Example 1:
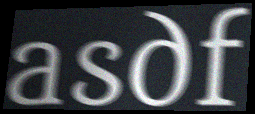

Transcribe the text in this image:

asdf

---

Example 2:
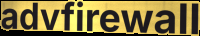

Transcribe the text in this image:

advfirewall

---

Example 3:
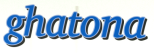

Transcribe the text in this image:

ghatona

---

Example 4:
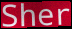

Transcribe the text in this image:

Sher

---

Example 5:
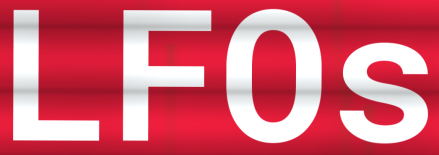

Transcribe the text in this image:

LFOs